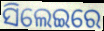
ସିଲେଇରେ